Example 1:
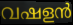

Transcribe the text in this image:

വഷളൻ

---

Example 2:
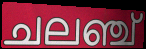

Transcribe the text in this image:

ചലഞ്ച്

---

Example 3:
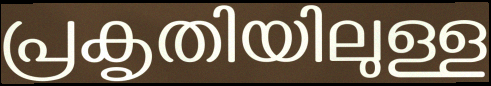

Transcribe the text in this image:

പ്രകൃതിയിലുള്ള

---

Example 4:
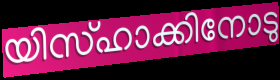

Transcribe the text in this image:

യിസ്ഹാക്കിനോടു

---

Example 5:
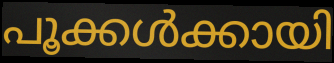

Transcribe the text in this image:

പൂക്കൾക്കായി